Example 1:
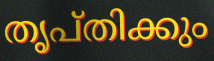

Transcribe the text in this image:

തൃപ്തിക്കും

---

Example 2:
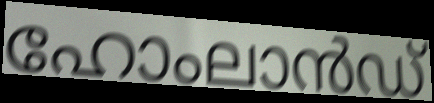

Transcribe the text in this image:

ഹോംലാൻഡ്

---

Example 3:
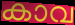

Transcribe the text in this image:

കാവ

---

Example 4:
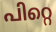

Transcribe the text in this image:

പിറ്റെ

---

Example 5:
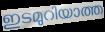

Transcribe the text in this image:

ഇടമുറിയാത്ത